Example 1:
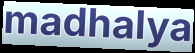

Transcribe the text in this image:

madhalya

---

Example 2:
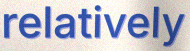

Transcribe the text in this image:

relatively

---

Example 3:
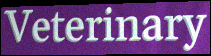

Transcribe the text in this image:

Veterinary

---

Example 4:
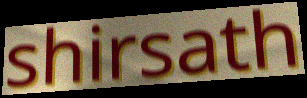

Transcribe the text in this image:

shirsath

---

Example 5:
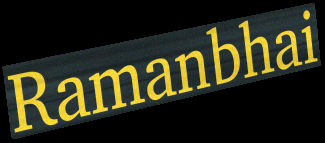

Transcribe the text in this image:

Ramanbhai